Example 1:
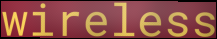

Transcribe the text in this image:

wireless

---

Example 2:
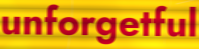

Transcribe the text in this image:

unforgetful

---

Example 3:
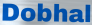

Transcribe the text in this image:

Dobhal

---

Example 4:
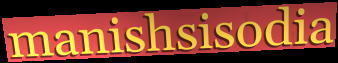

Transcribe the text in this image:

manishsisodia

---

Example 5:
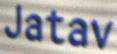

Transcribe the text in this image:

Jatav